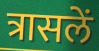
त्रासलें